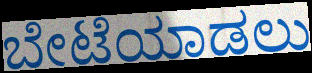
ಬೇಟೆಯಾಡಲು